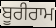
ਬੂਰੀਰਾਮ